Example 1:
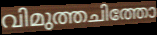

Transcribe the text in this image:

വിമുത്തചിത്തോ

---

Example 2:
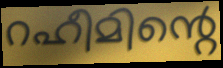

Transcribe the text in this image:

റഹീമിന്റെ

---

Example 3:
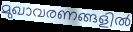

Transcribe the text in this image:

മുഖാവരണങ്ങളിൽ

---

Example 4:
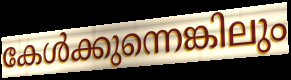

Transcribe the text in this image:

കേൾക്കുന്നെങ്കിലും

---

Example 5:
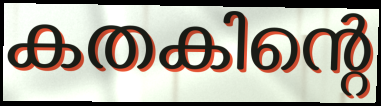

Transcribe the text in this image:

കതകിന്റെ